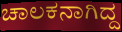
ಚಾಲಕನಾಗಿದ್ದ